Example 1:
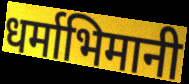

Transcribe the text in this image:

धर्माभिमानी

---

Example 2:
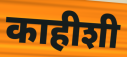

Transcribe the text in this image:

काहीशी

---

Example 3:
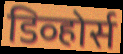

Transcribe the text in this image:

डिव्होर्स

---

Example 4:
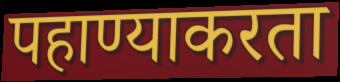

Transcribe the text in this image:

पहाण्याकरता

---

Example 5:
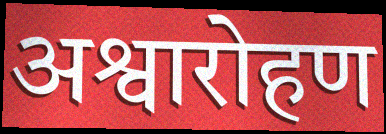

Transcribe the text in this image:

अश्वारोहण